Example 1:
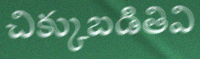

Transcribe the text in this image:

చిక్కుబడితివి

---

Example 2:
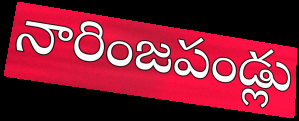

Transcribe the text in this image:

నారింజపండ్లు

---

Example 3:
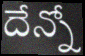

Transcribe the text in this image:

దేన్నో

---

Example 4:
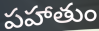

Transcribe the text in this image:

పహాతుం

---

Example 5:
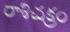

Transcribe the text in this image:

రాశిచక్రం